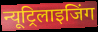
न्यूट्रिलाइजिंग